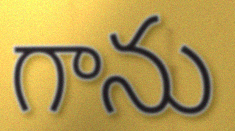
గాను